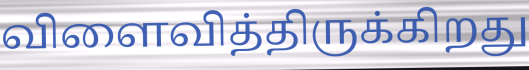
விளைவித்திருக்கிறது